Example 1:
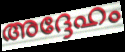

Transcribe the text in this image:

അദ്ദേഹം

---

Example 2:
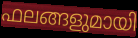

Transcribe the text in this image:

ഫലങ്ങളുമായി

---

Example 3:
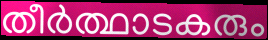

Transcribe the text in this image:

തീർത്ഥാടകരും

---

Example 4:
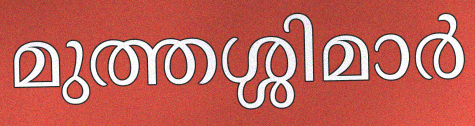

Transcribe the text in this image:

മുത്തശ്ശിമാർ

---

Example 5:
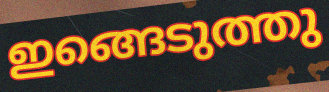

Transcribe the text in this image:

ഇങ്ങെടുത്തു